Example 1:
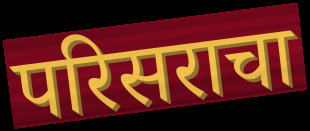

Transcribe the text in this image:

परिसराचा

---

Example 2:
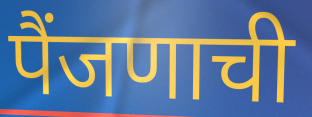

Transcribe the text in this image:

पैंजणाची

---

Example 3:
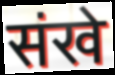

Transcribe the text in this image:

संखे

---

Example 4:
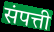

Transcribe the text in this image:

संपत्ती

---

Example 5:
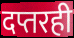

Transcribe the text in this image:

दप्तरही